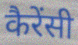
कैरेंसी